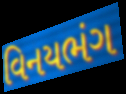
વિનયભંગ